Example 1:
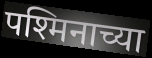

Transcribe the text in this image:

पश्मिनाच्या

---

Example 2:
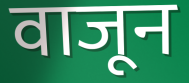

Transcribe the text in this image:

वाजून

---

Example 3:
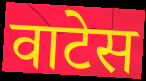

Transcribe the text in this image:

वाटेस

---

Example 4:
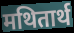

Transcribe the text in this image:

मथितार्थ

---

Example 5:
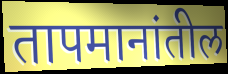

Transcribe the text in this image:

तापमानांतील